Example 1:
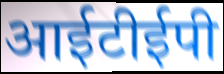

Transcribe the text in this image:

आईटीईपी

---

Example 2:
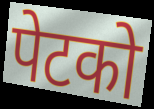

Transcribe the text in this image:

पेटको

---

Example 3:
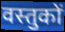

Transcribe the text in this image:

वस्तुकों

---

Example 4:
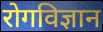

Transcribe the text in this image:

रोगविज्ञान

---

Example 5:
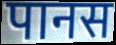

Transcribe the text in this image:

पानस